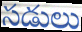
సడులు